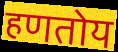
हणतोय